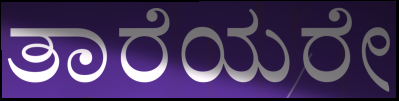
ತಾರೆಯರೇ